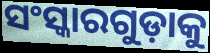
ସଂସ୍କାରଗୁଡ଼ାକୁ